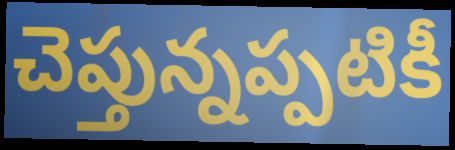
చెప్తున్నప్పటికీ